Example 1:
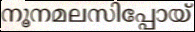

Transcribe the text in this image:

നൂനമലസിപ്പോയ്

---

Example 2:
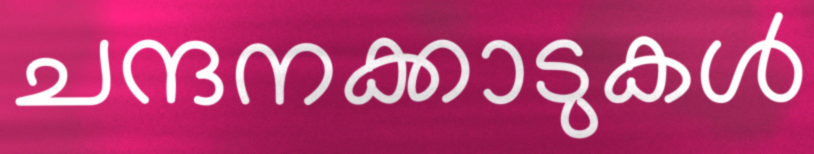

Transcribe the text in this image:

ചന്ദനക്കാടുകൾ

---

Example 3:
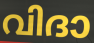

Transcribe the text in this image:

വിദാ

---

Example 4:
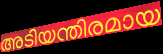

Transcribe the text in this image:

അടിയന്തിരമായ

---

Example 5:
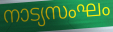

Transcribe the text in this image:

നാട്യസംഘം